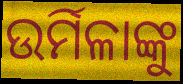
ଉର୍ମିଳାଙ୍କୁ